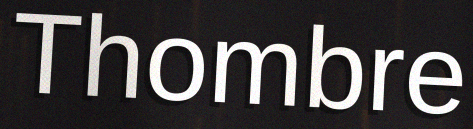
Thombre